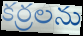
కర్రలను